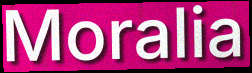
Moralia